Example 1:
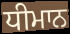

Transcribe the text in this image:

ਧੀਮਾਨ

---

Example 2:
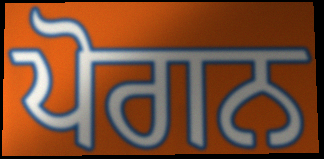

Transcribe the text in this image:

ਪੋਗਨ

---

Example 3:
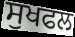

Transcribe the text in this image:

ਸੁਖਫਲ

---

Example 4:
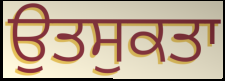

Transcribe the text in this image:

ਉਤਸੁਕਤਾ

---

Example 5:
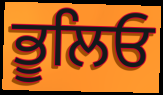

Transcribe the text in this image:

ਭੂਲਿਓ